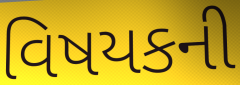
વિષયકની